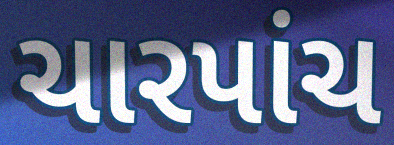
ચારપાંચ